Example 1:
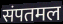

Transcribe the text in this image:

संपतमल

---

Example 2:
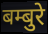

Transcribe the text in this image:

बम्बुरे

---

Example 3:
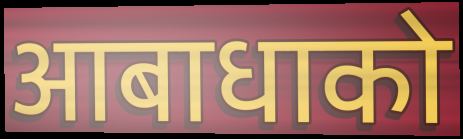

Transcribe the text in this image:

आबाधाको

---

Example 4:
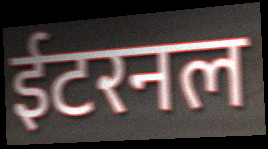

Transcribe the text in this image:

ईटरनल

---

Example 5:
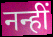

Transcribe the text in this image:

नन्हीं